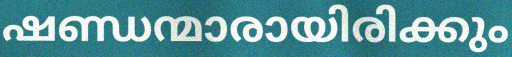
ഷണ്ഡന്മാരായിരിക്കും